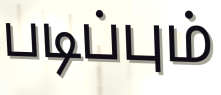
படிப்பும்